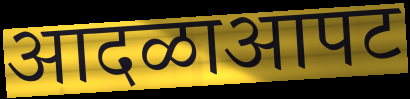
आदळाआपट